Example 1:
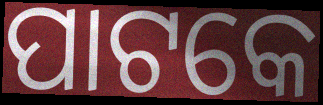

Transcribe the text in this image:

ପାଟକେ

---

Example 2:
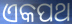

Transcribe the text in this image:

ଏକପଥ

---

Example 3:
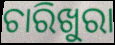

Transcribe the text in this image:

ଚାରିଖୁରା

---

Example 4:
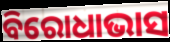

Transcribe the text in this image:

ବିରୋଧାଭାସ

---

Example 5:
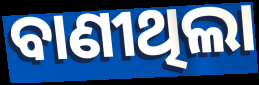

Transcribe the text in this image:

ବାଣୀଥିଲା